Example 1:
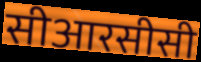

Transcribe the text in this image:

सीआरसीसी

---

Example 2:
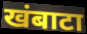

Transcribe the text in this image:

खंबाटा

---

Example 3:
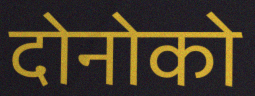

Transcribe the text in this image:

दोनोको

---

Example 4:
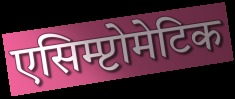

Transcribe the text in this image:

एसिम्प्टोमेटिक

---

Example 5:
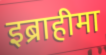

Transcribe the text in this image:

इब्राहीमा